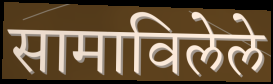
सामाविलेले